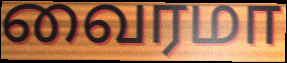
வைரமா